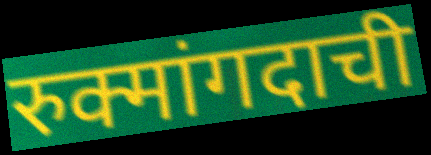
रुक्मांगदाची